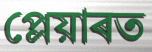
প্লেয়াৰত